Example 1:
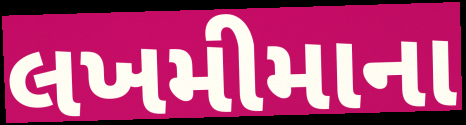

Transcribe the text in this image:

લખમીમાના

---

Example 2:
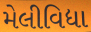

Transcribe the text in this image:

મેલીવિદ્યા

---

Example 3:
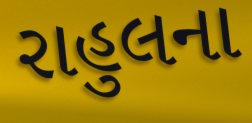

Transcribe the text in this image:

રાહુલના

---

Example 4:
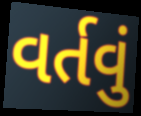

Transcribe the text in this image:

વર્તવું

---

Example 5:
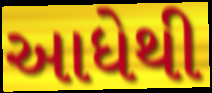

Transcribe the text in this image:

આધેથી